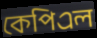
কেপিএল